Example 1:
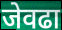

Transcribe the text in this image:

जेवढा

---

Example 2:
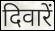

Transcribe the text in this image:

दिवारें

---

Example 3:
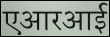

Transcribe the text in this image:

एआरआई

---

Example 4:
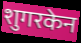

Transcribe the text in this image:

शुगरकेन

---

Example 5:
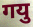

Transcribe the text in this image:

गयु